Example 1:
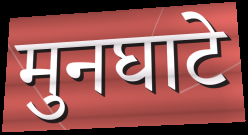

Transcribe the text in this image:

मुनघाटे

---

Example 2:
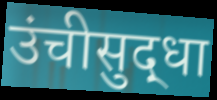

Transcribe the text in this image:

उंचीसुद्धा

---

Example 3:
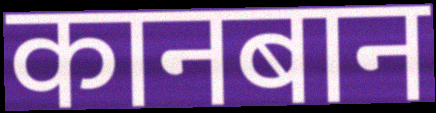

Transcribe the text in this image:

कानबान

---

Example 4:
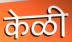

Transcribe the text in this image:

केळी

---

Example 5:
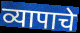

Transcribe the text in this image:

व्यापाचे